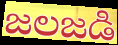
జలజడి